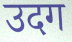
उदग